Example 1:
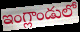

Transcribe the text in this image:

ఇంగ్లాండులో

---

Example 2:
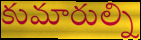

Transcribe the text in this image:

కుమారుల్ని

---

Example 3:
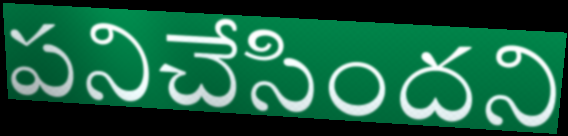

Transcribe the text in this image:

పనిచేసిందని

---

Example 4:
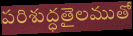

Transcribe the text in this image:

పరిశుద్ధతైలముతో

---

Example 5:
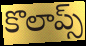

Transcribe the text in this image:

కొలాప్స్